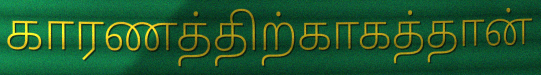
காரணத்திற்காகத்தான்